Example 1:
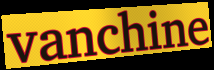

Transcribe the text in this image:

vanchine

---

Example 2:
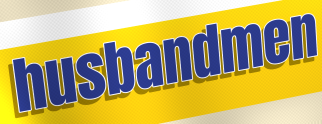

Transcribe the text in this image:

husbandmen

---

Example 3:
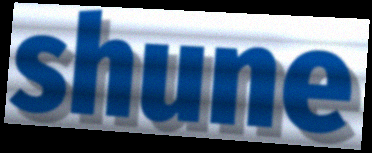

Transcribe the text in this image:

shune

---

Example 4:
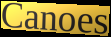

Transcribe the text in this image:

Canoes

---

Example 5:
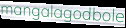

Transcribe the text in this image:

mangalagodbole